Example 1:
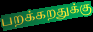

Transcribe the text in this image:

பறக்கறதுக்கு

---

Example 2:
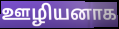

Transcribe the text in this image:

ஊழியனாக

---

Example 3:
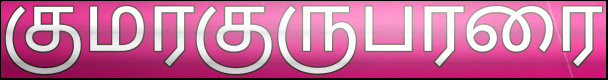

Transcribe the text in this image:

குமரகுருபரரை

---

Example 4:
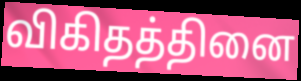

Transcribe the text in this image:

விகிதத்தினை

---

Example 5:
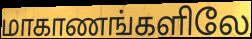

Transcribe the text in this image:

மாகாணங்களிலே